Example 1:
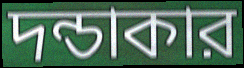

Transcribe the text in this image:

দন্ডাকার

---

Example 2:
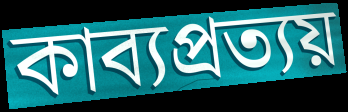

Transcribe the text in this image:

কাব্যপ্রত্যয়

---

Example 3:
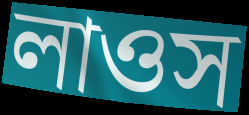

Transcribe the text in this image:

লাওস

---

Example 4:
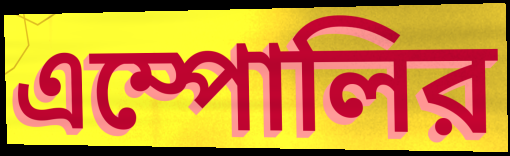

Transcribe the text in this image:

এম্পোলির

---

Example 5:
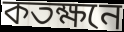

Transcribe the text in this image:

কতক্ষনে